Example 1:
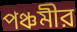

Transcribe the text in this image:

পঞ্চমীর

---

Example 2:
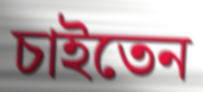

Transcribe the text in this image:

চাইতেন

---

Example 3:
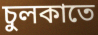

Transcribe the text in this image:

চুলকাতে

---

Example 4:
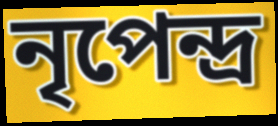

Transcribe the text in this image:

নৃপেন্দ্র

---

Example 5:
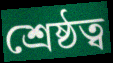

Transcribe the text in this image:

শ্রেষ্ঠত্ব